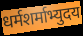
धर्मशर्माभ्युदय